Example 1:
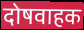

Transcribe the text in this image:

दोषवाहक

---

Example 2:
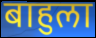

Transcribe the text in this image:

बाहुला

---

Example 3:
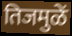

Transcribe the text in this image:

तिजमुळें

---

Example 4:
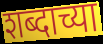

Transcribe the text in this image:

शब्दाच्या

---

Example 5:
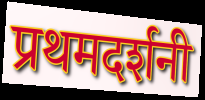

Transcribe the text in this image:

प्रथमदर्शनी